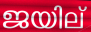
ജയില്